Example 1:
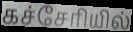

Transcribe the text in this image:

கச்சேரியில்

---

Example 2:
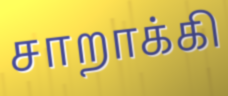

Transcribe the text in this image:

சாறாக்கி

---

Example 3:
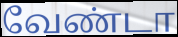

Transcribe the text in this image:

வேண்டா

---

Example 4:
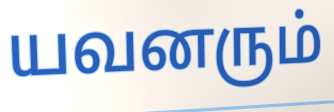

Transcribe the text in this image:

யவனரும்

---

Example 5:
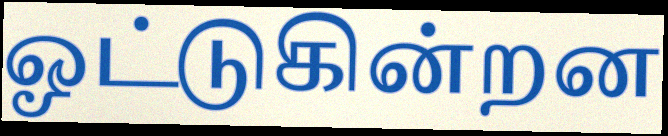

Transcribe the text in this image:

ஓட்டுகின்றன